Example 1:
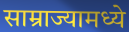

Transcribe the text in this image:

साम्राज्यामध्ये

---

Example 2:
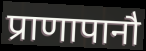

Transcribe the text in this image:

प्राणापानौ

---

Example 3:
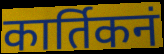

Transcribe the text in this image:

कार्तिकनं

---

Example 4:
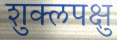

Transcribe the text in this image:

शुक्लपक्षु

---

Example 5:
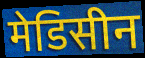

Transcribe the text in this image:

मेडिसीन